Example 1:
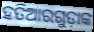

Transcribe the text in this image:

ହତିଆରଗୁଡ଼ାକ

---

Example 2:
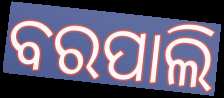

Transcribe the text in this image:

ବରପାଲି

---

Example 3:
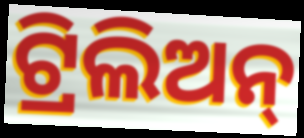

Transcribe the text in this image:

ଟ୍ରିଲିଅନ୍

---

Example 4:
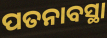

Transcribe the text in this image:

ପତନାବସ୍ଥା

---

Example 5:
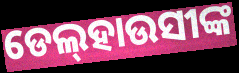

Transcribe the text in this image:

ଡେଲ୍‌ହାଉସୀଙ୍କ